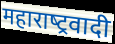
महाराष्ट्रवादी